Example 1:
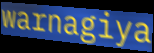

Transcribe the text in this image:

warnagiya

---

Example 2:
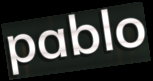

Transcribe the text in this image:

pablo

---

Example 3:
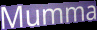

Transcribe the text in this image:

Mumma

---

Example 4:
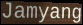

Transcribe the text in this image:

Jamyang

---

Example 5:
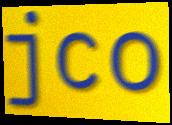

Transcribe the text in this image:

jco